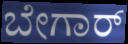
ಬೇಗಾರ್